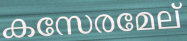
കസേരമേല്